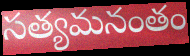
సత్యమనంతం